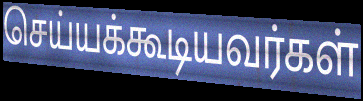
செய்யக்கூடியவர்கள்